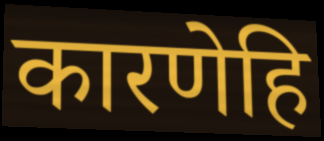
कारणेहि